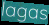
lagas